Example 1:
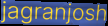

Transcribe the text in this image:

jagranjosh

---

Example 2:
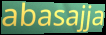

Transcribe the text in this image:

abasajja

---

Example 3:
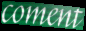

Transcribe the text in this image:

coment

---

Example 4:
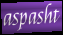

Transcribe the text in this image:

aspasht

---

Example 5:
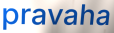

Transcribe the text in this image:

pravaha